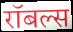
रॉबल्स